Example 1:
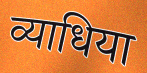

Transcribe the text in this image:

व्याधिया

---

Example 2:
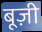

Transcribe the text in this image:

बूज़ी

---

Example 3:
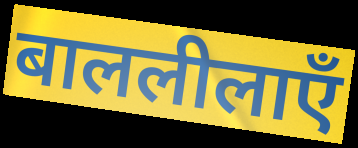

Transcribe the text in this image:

बाललीलाएँ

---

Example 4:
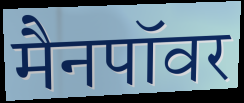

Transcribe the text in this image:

मैनपॉवर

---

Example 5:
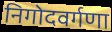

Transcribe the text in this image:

निगोदवर्गणा